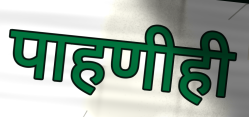
पाहणीही